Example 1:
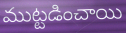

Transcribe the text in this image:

ముట్టడించాయి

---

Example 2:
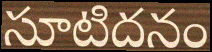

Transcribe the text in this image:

సూటిదనం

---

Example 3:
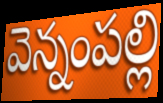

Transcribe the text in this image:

వెన్నంపల్లి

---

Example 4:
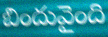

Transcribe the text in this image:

బిందువైంది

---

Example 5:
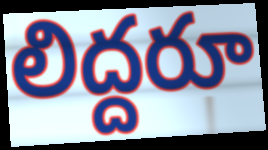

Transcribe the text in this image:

లిద్దరూ